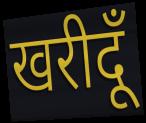
खरीदूँ